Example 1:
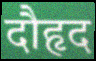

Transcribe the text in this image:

दौहृद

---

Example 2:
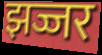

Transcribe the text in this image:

झज्जर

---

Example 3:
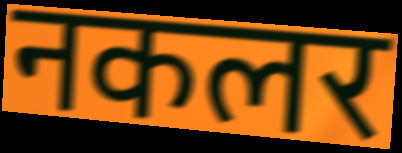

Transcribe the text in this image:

नकलर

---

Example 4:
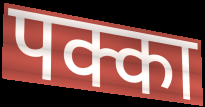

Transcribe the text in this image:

पक्का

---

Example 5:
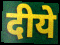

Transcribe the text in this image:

दीये